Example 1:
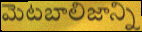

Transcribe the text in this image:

మెటబాలిజాన్ని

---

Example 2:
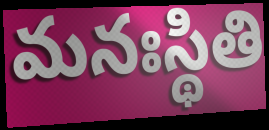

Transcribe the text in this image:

మనఃస్థితి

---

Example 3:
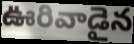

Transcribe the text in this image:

ఊరివాడైన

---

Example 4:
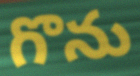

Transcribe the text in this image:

గొను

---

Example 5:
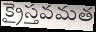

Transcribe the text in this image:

క్రైస్తవమత